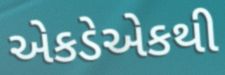
એકડેએકથી